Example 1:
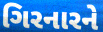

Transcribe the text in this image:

ગિરનારને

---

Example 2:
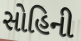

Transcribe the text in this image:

સોહિની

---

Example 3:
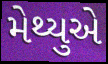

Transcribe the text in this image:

મેથ્યુએ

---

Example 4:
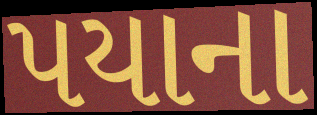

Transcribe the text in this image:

પયાના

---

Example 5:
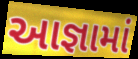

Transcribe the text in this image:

આજ્ઞામાં